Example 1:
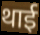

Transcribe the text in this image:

थाई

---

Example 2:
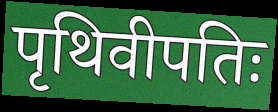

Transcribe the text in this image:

पृथिवीपतिः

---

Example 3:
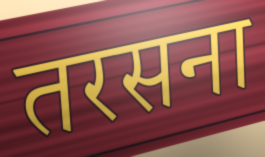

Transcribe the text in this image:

तरसना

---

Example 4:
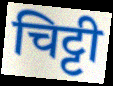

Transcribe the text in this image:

चिट्टी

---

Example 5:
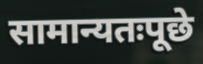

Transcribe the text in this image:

सामान्यतःपूछे